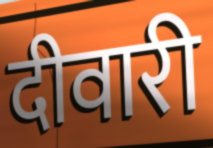
दीवारी